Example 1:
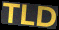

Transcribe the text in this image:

TLD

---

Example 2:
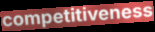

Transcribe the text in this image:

competitiveness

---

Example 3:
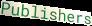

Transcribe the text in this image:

Publishers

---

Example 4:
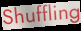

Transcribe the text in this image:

Shuffling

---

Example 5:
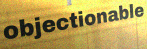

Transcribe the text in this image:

objectionable